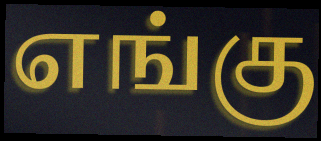
எங்கு